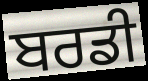
ਬਰਡੀ